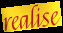
realise